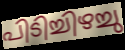
പിടിച്ചിഴച്ചു